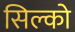
सिल्को